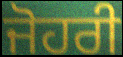
ਜੋਹਰੀ